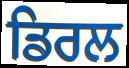
ਡਿਰਲ